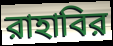
রাহাবির